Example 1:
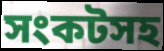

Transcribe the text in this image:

সংকটসহ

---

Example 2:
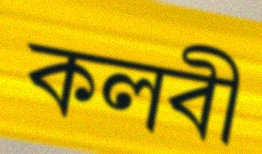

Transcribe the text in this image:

কলবী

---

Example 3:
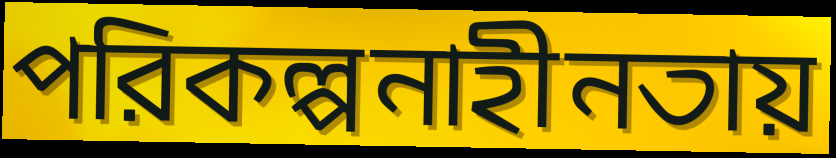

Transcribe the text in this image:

পরিকল্পনাহীনতায়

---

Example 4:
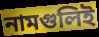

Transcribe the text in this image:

নামগুলিই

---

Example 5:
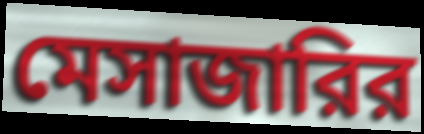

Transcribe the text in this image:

মেসাজারির